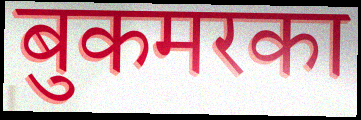
बुकमरका